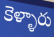
కెళ్ళారు